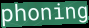
phoning